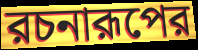
রচনারূপের